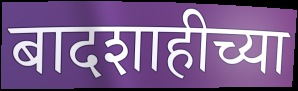
बादशाहीच्या